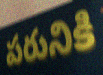
పరునికి